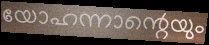
യോഹന്നാന്റെയും